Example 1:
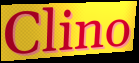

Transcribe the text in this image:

Clino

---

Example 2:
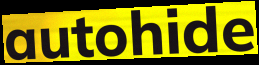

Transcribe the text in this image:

autohide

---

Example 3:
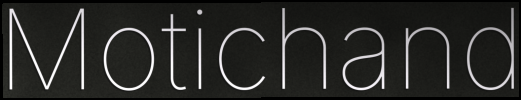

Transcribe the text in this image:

Motichand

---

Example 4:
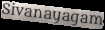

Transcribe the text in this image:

Sivanayagam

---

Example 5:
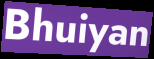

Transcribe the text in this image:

Bhuiyan